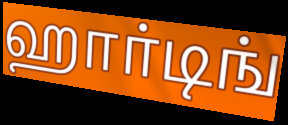
ஹார்டிங்